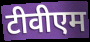
टीवीएम